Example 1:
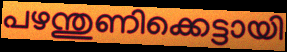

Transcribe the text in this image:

പഴന്തുണിക്കെട്ടായി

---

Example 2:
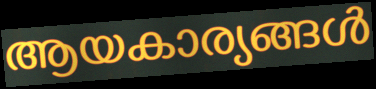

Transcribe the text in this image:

ആയകാര്യങ്ങൾ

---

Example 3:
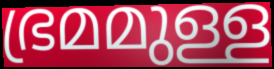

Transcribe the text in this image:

ഭ്രമമുള്ള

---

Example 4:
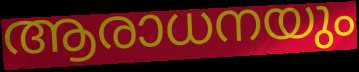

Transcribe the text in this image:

ആരാധനയും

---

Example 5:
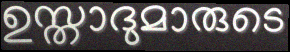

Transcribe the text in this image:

ഉസ്താദുമാരുടെ